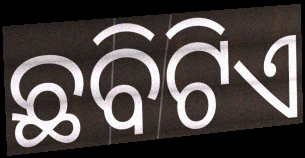
ଛବିଟିଏ